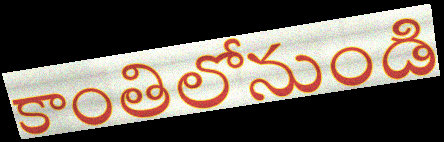
కాంతిలోనుండి